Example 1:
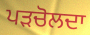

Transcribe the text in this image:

ਪੜਚੋਲਦਾ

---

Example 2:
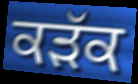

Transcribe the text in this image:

ਕੜੱਕ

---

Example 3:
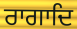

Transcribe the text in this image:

ਰਾਗਾਦਿ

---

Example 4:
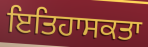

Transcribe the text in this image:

ਇਤਿਹਾਸਕਤਾ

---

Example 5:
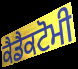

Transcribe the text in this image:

ਕੈਡੈਕਟੋਮੀ